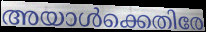
അയാൾക്കെതിരേ